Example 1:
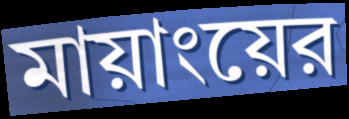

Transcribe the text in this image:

মায়াংয়ের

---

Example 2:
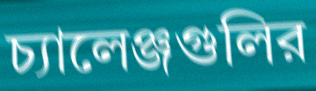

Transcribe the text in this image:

চ্যালেঞ্জগুলির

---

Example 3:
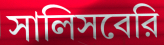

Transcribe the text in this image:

সালিসবেরি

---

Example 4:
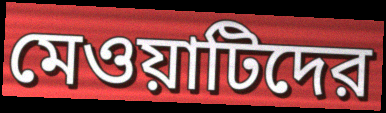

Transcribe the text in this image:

মেওয়াটিদের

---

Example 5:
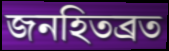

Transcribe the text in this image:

জনহিতব্রত